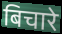
बिचारे